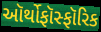
ઑર્થોફૉસ્ફૉરિક